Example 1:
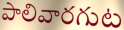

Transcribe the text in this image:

పాలివారగుట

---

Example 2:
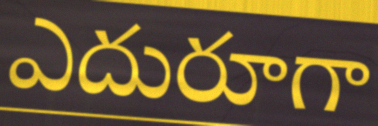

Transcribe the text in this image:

ఎదురూగా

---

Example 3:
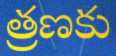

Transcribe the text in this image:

త్రణకు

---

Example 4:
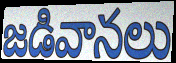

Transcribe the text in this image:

జడివానలు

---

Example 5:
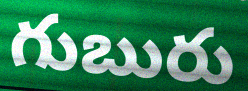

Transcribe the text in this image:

గుబురు